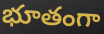
భూతంగా